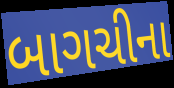
બાગચીના